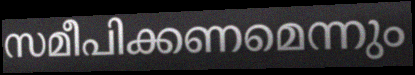
സമീപിക്കണമെന്നും